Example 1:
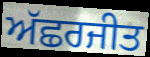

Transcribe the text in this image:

ਅੱਛਰਜੀਤ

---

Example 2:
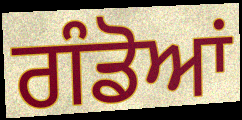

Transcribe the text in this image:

ਗੰਡੋਆਂ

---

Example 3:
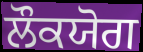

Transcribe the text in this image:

ਲੌਕਯੋਗ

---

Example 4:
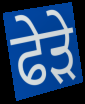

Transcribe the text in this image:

ਫੇੜੇ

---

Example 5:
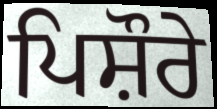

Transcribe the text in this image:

ਪਿਸ਼ੌਰੇ